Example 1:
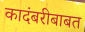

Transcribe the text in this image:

कादंबरीबाबत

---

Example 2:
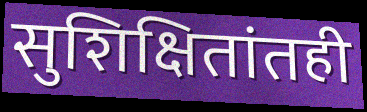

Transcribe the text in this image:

सुशिक्षितांतही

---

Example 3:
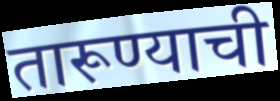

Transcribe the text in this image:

तारूण्याची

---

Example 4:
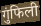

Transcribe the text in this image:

गुंफिली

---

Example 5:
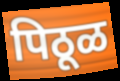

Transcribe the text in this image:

पिठूळ